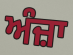
ਅੰਜ਼ਾ